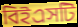
বিইএসটি